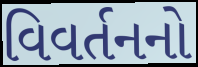
વિવર્તનનો